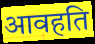
आवहति